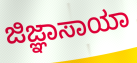
ಜಿಜ್ಞಾಸಾಯಾ